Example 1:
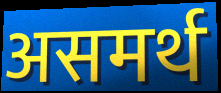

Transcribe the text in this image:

असमर्थ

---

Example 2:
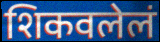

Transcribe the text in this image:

शिकवलेलं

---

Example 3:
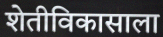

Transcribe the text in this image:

शेतीविकासाला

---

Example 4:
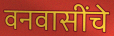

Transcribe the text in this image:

वनवासींचे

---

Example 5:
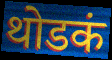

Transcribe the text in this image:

थोडकं